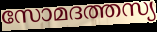
സോമദത്തസ്യ